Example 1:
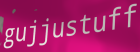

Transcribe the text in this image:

gujjustuff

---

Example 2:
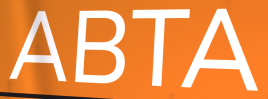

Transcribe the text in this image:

ABTA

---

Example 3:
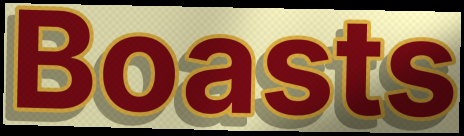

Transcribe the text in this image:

Boasts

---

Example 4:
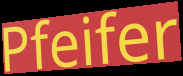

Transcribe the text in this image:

Pfeifer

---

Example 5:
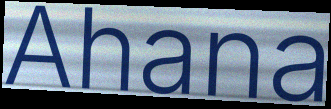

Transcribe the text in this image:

Ahana